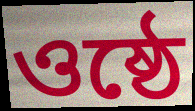
ওষ্ঠে